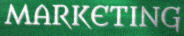
MARKETING